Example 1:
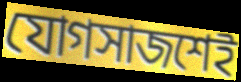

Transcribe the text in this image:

যোগসাজশেই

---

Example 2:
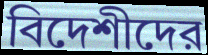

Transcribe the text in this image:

বিদেশীদের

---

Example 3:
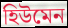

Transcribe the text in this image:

হিউমেন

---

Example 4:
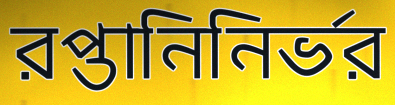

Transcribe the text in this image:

রপ্তানিনির্ভর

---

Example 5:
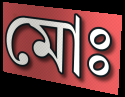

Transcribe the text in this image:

মোঃ